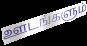
ஊடங்களும்